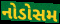
નોડોસમ